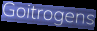
Goitrogens